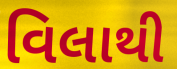
વિલાથી